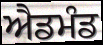
ਐਡਮੰਡ